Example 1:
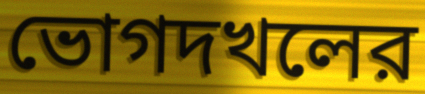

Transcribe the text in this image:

ভোগদখলের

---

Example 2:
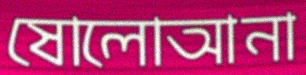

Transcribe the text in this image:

ষোলোআনা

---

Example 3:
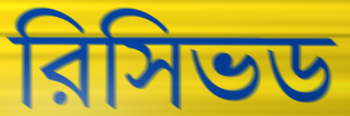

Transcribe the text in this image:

রিসিভড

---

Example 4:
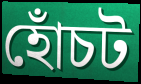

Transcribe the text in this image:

হোঁচট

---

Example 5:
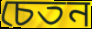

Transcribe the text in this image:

চেতন